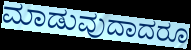
ಮಾಡುವುದಾದರೂ